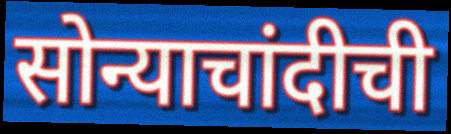
सोन्याचांदीची